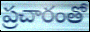
ప్రచారంతో